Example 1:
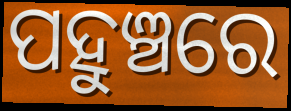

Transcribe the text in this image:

ପହୁଞ୍ଚରେ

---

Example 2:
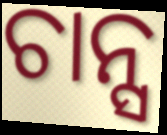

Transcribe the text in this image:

ଚାନ୍ସ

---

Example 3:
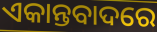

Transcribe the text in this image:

ଏକାନ୍ତବାଦରେ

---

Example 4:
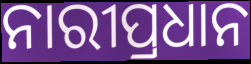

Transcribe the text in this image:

ନାରୀପ୍ରଧାନ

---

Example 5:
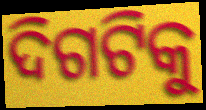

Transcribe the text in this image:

ଦିଗଟିକୁ